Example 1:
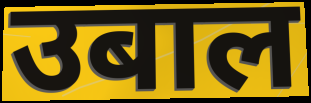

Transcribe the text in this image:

उबाल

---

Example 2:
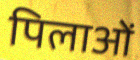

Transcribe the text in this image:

पिलाओं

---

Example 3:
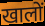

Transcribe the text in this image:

खालों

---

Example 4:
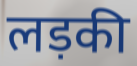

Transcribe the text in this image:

लड़की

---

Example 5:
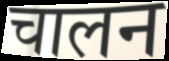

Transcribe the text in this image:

चालन